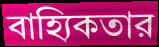
বাহ্যিকতার